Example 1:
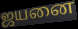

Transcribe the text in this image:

ஜயனை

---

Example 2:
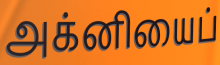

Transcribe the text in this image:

அக்னியைப்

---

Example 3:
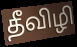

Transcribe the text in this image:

தீவிழி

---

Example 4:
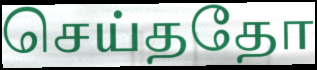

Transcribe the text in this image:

செய்ததோ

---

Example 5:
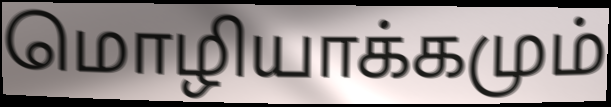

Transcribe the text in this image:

மொழியாக்கமும்